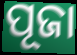
ପୂଜା